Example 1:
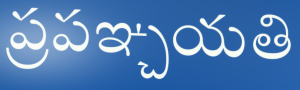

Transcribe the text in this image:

ప్రపఞ్చయతి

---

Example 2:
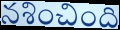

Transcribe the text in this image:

నశించింది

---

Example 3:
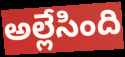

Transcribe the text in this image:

అల్లేసింది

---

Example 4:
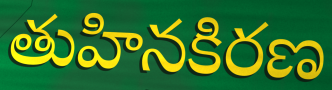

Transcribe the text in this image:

తుహినకిరణ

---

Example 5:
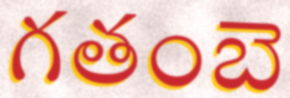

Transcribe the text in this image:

గతంబె